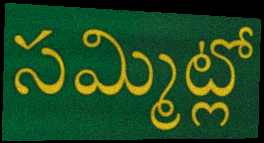
సమ్మిట్లో